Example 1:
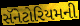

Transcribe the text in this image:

સૅનેટોરિયમની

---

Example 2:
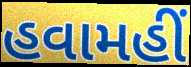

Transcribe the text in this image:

હવામહીં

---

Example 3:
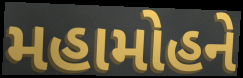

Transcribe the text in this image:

મહામોહને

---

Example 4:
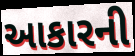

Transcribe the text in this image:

આકારની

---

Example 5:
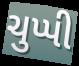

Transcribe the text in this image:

ચુપ્પી